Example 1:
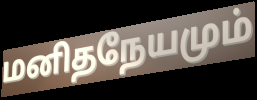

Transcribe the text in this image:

மனிதநேயமும்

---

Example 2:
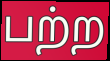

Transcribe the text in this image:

பற்ற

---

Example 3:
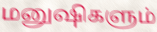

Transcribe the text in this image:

மனுஷிகளும்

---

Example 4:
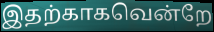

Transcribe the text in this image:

இதற்காகவென்றே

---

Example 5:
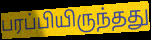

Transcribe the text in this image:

பரப்பியிருந்தது